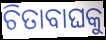
ଚିତାବାଘକୁ